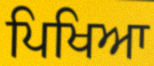
ਪਿਖਿਆ